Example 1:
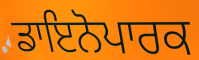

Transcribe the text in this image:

ਡਾਇਨੋਪਾਰਕ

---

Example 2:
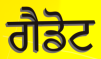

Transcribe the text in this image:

ਗੈਡੋਟ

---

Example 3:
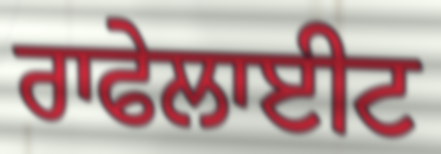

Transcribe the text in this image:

ਰਾਫੇਲਾਈਟ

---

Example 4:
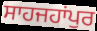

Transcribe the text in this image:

ਸਾਹਜਹਾਂਪੁਰ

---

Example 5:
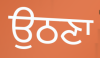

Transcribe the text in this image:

ਉਠਣਾ